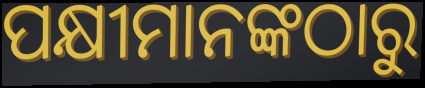
ପକ୍ଷୀମାନଙ୍କଠାରୁ